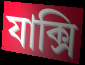
যাক্সি